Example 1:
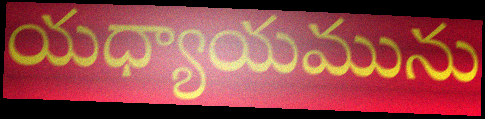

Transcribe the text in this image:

యధ్యాయమును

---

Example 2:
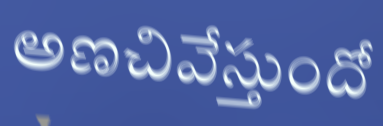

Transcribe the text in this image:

అణచివేస్తుందో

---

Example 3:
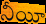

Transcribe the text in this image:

నీయీ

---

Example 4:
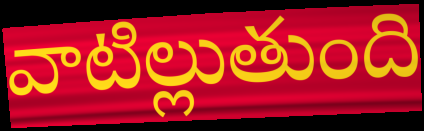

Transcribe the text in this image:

వాటిల్లుతుంది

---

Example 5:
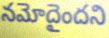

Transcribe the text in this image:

నమోదైందని